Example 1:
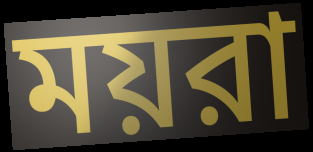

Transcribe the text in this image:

ময়রা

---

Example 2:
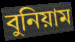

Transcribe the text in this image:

বুনিয়াম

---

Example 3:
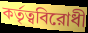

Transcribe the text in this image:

কর্তৃত্ববিরোধী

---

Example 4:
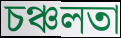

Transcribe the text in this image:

চঞ্চলতা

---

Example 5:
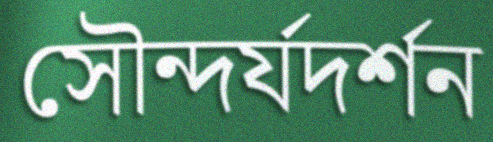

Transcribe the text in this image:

সৌন্দর্যদর্শন